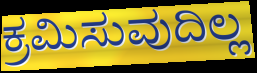
ಕ್ರಮಿಸುವುದಿಲ್ಲ